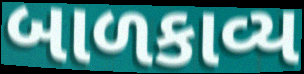
બાળકાવ્ય